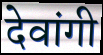
देवांगी